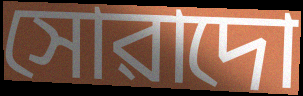
সোৱাদো